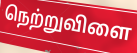
நெற்றுவிளை